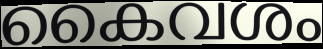
കൈവശം